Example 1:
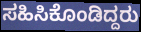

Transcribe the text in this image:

ಸಹಿಸಿಕೊಂಡಿದ್ದರು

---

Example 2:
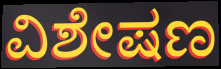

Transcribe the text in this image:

ವಿಶೇಷಣ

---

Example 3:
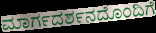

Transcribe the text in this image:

ಮಾರ್ಗದರ್ಶನದೊಂದಿಗೆ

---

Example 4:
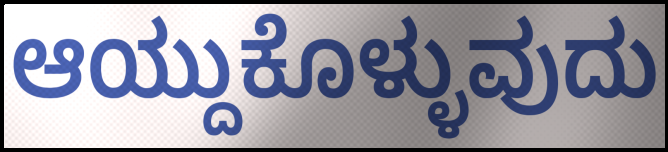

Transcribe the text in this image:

ಆಯ್ದುಕೊಳ್ಳುವುದು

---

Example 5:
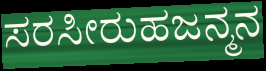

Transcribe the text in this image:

ಸರಸೀರುಹಜನ್ಮನ